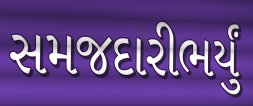
સમજદારીભર્યું